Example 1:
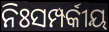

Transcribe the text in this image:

ନିଃସମ୍ପର୍କୀୟ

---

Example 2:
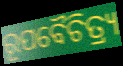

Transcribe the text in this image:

ରୂପବୈଚିତ୍ର୍ୟ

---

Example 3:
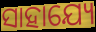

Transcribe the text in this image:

ସାହାଯ୍ୟେ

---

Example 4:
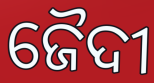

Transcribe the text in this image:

ଜୈଦୀ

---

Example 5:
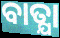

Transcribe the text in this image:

ବାତ୍ଯା